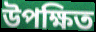
উপক্ষিত